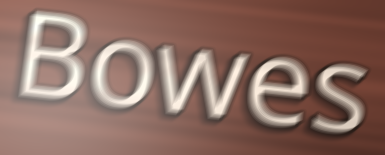
Bowes